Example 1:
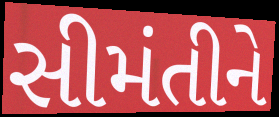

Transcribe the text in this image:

સીમંતીને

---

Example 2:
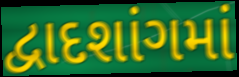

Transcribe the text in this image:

દ્વાદશાંગમાં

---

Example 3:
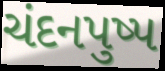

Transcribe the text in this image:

ચંદનપુષ્પ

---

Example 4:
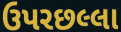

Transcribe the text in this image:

ઉપરછલ્લા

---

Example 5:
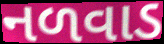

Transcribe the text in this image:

નળવાડ